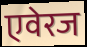
एवेरज